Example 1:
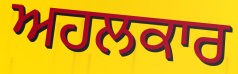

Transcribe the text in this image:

ਅਹਲਕਾਰ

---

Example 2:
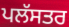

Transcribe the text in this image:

ਪਲੱਸਤਰ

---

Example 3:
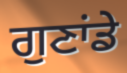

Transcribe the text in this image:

ਗੁਣਾਂਡੇ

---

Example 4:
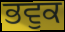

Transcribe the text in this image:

ਭਵੁਕ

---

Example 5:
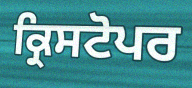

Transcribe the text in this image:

ਕ੍ਰਿਸਟੋਪਰ